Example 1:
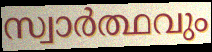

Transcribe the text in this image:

സ്വാർത്ഥവും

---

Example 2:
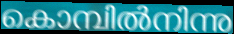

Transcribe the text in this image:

കൊമ്പിൽനിന്നു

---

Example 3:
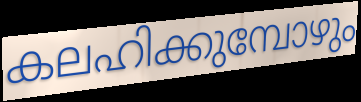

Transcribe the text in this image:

കലഹിക്കുമ്പോഴും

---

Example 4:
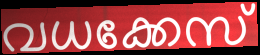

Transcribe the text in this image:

വധക്കേസ്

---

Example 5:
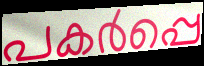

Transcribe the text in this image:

പകർപ്പെ